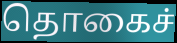
தொகைச்